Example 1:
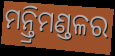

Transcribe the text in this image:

ମନ୍ତ୍ରିମଣ୍ଡଳର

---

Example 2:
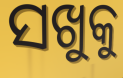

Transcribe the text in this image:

ସଖୁକୁ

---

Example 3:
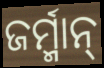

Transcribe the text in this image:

ଜର୍ମ୍ମାନ୍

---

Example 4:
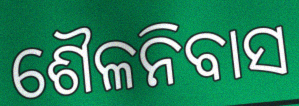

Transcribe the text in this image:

ଶୈଳନିବାସ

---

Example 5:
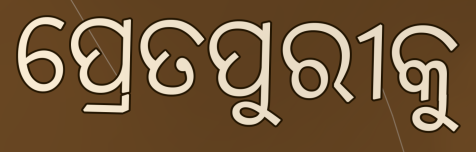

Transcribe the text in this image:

ପ୍ରେତପୁରୀକୁ